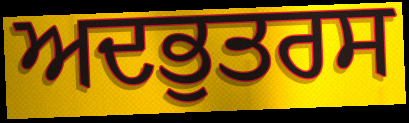
ਅਦਭੁਤਰਸ